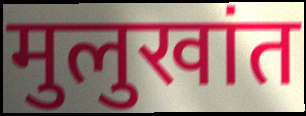
मुलुखांत